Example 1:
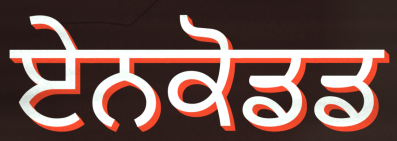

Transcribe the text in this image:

ਏਨਕੋਡਡ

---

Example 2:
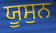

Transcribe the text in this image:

ਯੂਸੁਨ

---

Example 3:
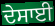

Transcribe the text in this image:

ਦੇਸਾਈ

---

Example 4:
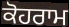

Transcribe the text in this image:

ਕੋਹਰਾਮ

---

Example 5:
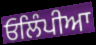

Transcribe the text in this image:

ਓਲਿੰਪੀਆ